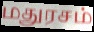
மதுரசம்